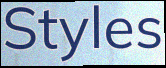
Styles